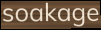
soakage